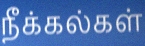
நீக்கல்கள்